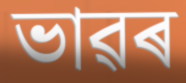
ভাৱৰ